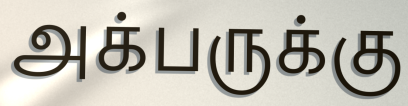
அக்பருக்கு